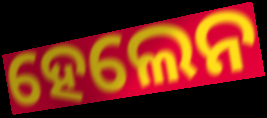
ହେଲେନ